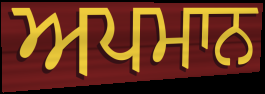
ਅਪਮਾਨ